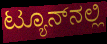
ಟ್ಯೂನ್‌ನಲ್ಲಿ